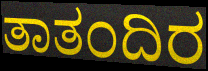
ತಾತಂದಿರ